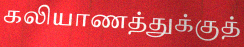
கலியாணத்துக்குத்